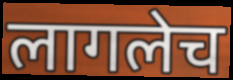
लागलेच